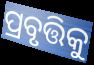
ପ୍ରବୃତ୍ତିକୁ